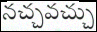
నచ్చవచ్చు